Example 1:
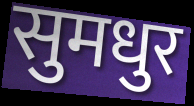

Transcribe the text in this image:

सुमधुर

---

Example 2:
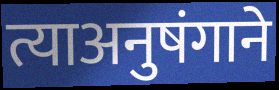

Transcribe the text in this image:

त्याअनुषंगाने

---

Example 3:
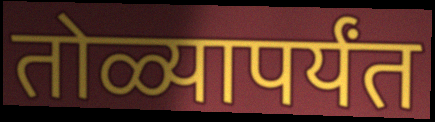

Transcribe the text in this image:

तोळ्यापर्यंत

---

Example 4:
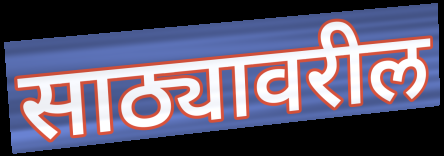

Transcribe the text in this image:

साठ्यावरील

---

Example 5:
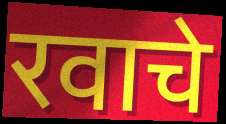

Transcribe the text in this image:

रवाचे